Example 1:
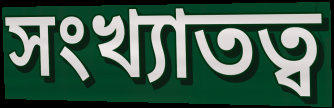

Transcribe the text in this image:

সংখ্যাতত্ব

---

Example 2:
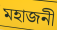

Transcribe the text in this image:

মহাজনী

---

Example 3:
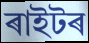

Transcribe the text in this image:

ৰাইটৰ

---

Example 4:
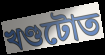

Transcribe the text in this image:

খণ্ডটোত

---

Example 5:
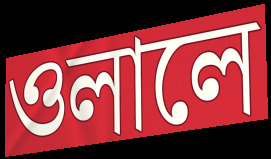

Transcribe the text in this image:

ওলালে